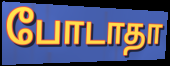
போடாதா